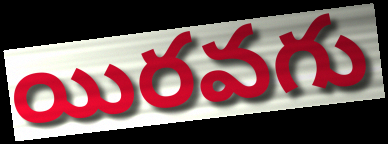
యిరవగు